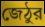
জেঠুর